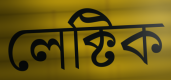
লেক্টিক